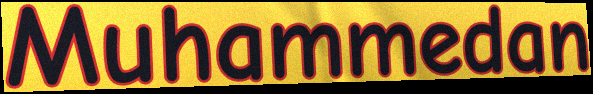
Muhammedan